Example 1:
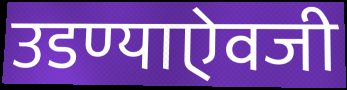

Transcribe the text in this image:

उडण्याऐवजी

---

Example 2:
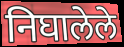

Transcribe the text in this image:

निघालेले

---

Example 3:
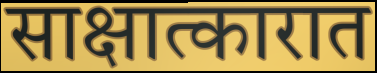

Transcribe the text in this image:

साक्षात्कारात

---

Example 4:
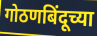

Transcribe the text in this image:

गोठणबिंदूच्या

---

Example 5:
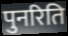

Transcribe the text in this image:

पुनरिति